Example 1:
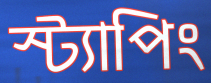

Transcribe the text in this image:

স্ট্যাপিং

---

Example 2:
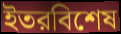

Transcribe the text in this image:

ইতরবিশেষ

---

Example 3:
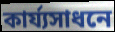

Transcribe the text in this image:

কার্য্যসাধনে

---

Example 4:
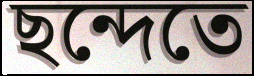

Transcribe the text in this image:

ছন্দেতে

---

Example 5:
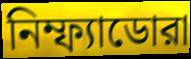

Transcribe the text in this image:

নিম্ফ্যাডোরা